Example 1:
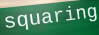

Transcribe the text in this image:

squaring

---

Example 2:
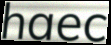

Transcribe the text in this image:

haec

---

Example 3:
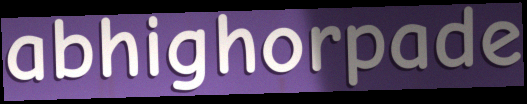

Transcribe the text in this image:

abhighorpade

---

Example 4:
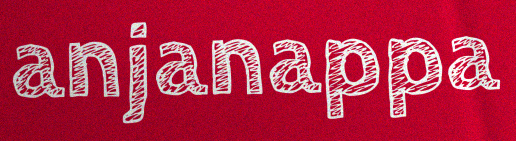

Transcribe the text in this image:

anjanappa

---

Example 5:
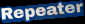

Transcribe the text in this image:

Repeater